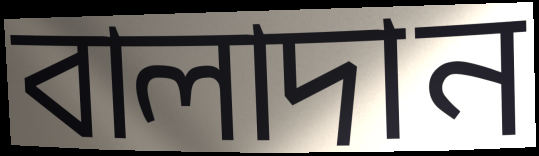
বালাদান